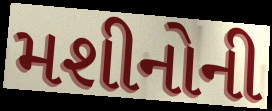
મશીનોની